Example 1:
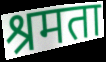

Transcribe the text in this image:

श्रमता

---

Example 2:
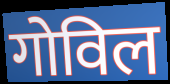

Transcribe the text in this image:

गोविल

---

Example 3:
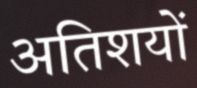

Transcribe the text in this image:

अतिशयों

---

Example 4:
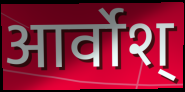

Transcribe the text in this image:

आर्वोश्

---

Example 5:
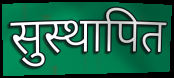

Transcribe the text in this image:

सुस्थापित